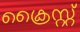
ക്രൈസ്റ്റ്